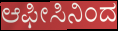
ಆಫೀಸಿನಿಂದ